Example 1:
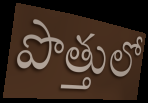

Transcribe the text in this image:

పొత్తులో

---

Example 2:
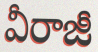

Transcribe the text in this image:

వీరాజీ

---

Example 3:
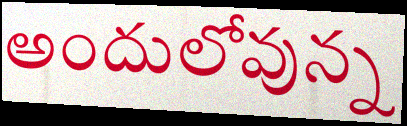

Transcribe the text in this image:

అందులోవున్న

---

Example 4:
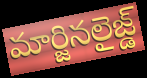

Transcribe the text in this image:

మార్జినలైజ్డ్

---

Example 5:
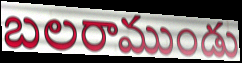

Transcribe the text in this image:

బలరాముండు